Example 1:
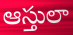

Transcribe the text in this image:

ఆస్తులా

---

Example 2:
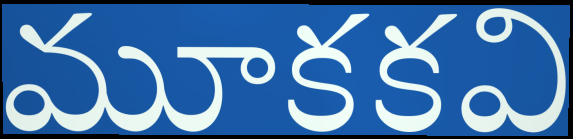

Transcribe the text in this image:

మూకకవి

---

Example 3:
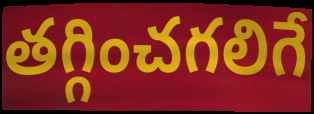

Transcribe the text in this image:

తగ్గించగలిగే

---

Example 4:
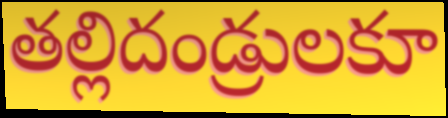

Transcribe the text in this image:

తల్లిదండ్రులకూ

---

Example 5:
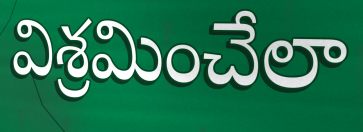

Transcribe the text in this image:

విశ్రమించేలా